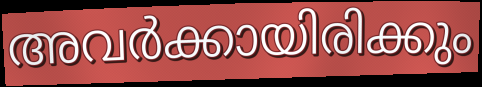
അവർക്കായിരിക്കും